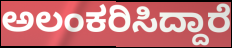
ಅಲಂಕರಿಸಿದ್ದಾರೆ